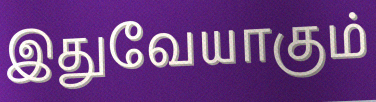
இதுவேயாகும்